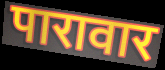
पारावार